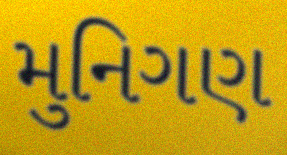
મુનિગણ